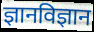
ज्ञानविज्ञान